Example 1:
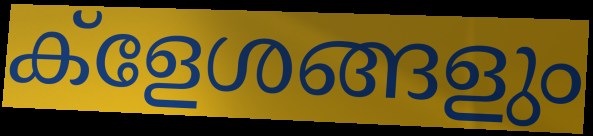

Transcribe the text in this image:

ക്ളേശങ്ങളും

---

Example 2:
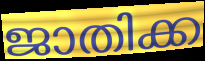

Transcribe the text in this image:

ജാതിക്ക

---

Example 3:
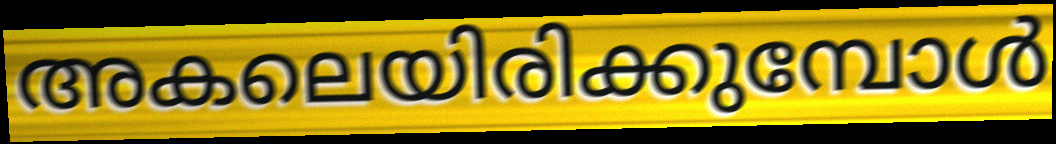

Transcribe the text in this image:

അകലെയിരിക്കുമ്പോൾ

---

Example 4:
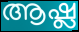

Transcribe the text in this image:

ആഷ്ല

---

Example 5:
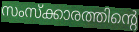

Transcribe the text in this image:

സംസ്ക്കാരത്തിന്റെ